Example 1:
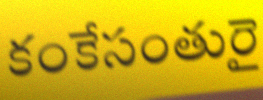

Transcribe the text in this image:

కంకేసంతురై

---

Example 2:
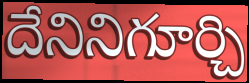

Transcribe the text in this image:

దేనినిగూర్చి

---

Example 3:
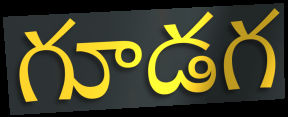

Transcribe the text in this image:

గూడగ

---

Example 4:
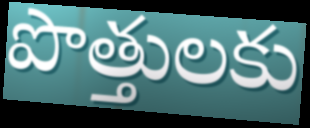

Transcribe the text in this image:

పొత్తులకు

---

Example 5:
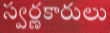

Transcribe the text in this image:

స్వర్ణకారులు